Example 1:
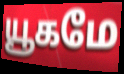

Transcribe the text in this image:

யூகமே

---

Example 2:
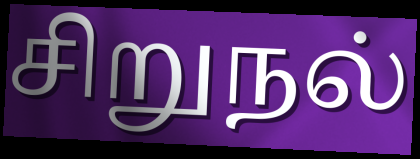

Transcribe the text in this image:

சிறுநல்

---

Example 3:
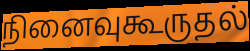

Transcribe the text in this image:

நினைவுகூருதல்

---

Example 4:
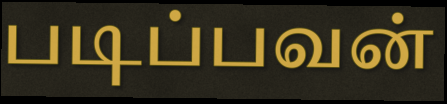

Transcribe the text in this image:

படிப்பவன்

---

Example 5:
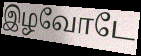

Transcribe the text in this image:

இழவோடே